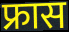
फ्रास